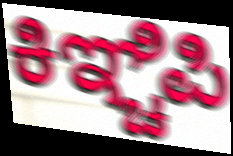
ಕಿಞ್ಚಿಪಿ